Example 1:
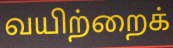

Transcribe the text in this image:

வயிற்றைக்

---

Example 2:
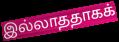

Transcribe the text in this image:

இல்லாததாகக்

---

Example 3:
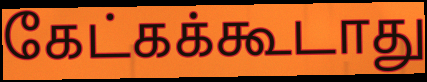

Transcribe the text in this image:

கேட்கக்கூடாது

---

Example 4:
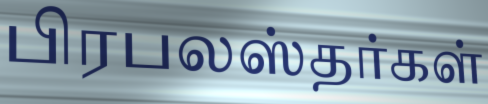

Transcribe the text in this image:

பிரபலஸ்தர்கள்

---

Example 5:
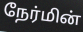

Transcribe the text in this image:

நேர்மின்